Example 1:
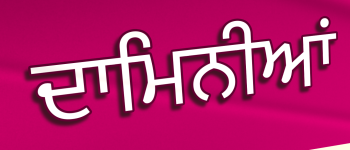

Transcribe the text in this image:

ਦਾਮਿਨੀਆਂ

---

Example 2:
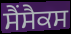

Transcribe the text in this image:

ਸੈਂਸੈਕਸ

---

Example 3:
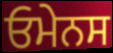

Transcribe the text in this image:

ਓਮੇਨਸ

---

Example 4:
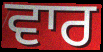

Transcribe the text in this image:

ਵਾਰ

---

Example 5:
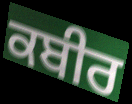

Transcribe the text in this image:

ਕਬੀਰ